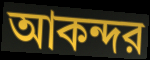
আকন্দর